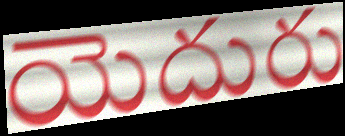
యెదురు